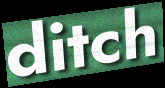
ditch